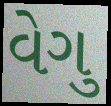
વેગુ